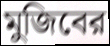
মুজিবের